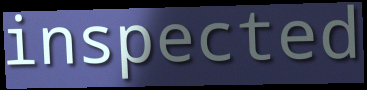
inspected